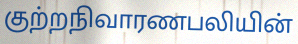
குற்றநிவாரணபலியின்